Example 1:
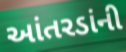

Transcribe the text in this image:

આંતરડાંની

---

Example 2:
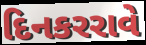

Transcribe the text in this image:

દિનકરરાવે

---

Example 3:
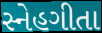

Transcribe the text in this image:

સ્નેહગીતા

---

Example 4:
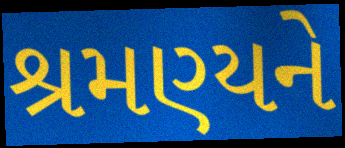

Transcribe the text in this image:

શ્રમણ્યને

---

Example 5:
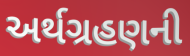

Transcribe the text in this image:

અર્થગ્રહણની